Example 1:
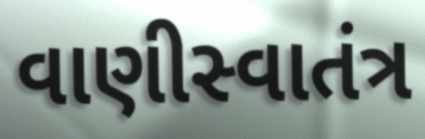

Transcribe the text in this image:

વાણીસ્વાતંત્ર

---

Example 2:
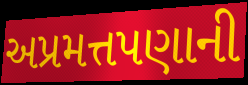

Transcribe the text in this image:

અપ્રમત્તપણાની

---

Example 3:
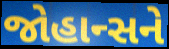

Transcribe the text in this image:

જોહાન્સને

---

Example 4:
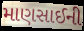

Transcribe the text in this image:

માણસાઈની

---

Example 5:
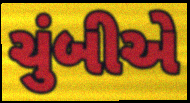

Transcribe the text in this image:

ચુંબીએ